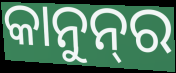
କାନୁନ୍‌ର